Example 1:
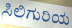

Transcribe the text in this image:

ಸಿಲಿಗುರಿಯ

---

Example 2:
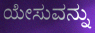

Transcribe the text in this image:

ಯೇಸುವನ್ನು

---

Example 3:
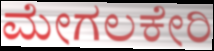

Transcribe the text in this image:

ಮೇಗಲಕೇರಿ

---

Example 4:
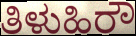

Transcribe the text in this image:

ತಿಳುಹಿರೌ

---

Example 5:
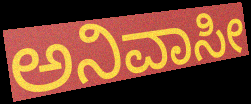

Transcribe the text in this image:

ಅನಿವಾಸೀ